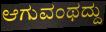
ಆಗುವಂಥದ್ದು